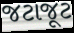
જટાજૂટ